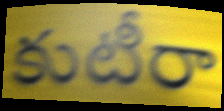
కుటీరా